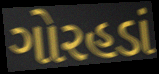
ગોરહડાં